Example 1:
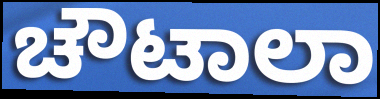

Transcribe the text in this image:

ಚೌಟಾಲಾ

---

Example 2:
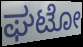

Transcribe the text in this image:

ಘಟೋ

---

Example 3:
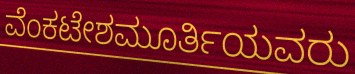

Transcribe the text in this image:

ವೆಂಕಟೇಶಮೂರ್ತಿಯವರು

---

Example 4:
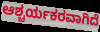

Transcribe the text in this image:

ಆಶ್ಚರ್ಯಕರವಾಗಿದೆ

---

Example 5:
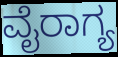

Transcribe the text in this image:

ವೈರಾಗ್ಯ